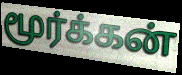
மூர்க்கன்